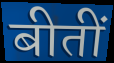
बीतीं